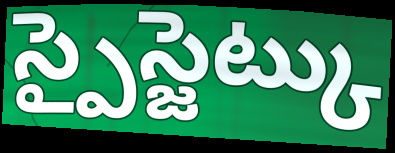
స్పైస్జెట్కు